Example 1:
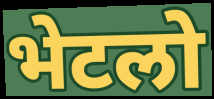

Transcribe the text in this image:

भेटलो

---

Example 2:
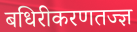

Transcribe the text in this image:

बधिरीकरणतज्ज्ञ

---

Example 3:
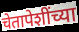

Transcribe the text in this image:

चेतापेशींच्या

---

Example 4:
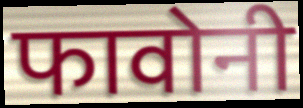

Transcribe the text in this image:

फावोनी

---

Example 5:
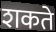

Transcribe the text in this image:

शकते